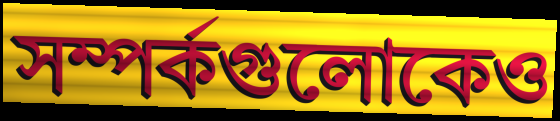
সম্পর্কগুলোকেও